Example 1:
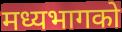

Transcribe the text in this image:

मध्यभागको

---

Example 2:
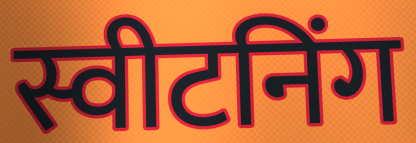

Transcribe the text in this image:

स्वीटनिंग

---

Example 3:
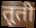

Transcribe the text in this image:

तूती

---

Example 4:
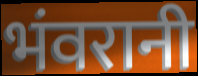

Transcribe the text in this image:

भंवरानी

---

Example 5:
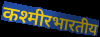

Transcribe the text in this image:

कश्मीरभारतीय